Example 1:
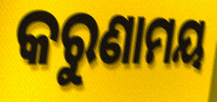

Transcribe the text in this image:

କରୁଣାମୟ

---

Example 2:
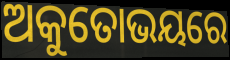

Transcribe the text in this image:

ଅକୁତୋଭୟରେ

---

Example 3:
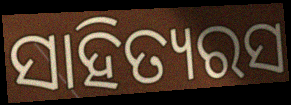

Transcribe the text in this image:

ସାହିତ୍ୟରସ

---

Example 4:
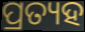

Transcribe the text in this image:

ପ୍ରତ୍ୟହ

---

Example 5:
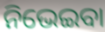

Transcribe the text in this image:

ନିଭେଇବା